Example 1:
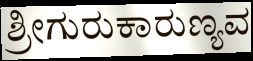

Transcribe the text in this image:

ಶ್ರೀಗುರುಕಾರುಣ್ಯವ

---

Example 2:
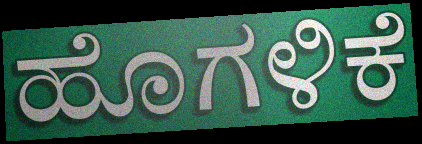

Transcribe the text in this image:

ಹೊಗಳಿಕೆ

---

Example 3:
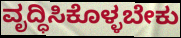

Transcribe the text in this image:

ವೃದ್ಧಿಸಿಕೊಳ್ಳಬೇಕು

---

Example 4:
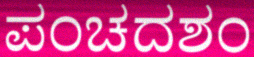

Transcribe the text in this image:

ಪಂಚದಶಂ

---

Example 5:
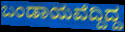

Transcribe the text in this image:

ಬಂಡಾಯವೆದ್ದಿದ್ದ